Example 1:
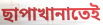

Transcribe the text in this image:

ছাপাখানাতেই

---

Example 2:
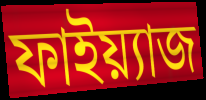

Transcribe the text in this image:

ফাইয়্যাজ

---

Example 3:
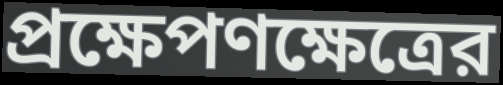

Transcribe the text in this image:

প্রক্ষেপণক্ষেত্রের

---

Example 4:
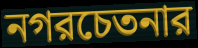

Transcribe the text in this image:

নগরচেতনার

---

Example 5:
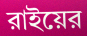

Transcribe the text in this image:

রাইয়ের